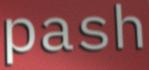
pash